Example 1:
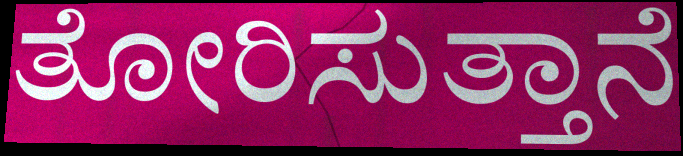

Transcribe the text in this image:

ತೋರಿಸುತ್ತಾನೆ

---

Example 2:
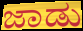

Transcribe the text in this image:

ಜಾಡು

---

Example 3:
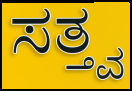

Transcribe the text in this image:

ಸತ್ತ್ವ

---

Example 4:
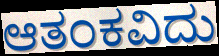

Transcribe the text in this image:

ಆತಂಕವಿದು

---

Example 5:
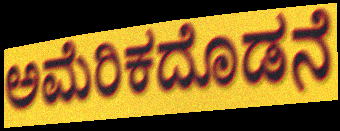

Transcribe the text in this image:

ಅಮೆರಿಕದೊಡನೆ